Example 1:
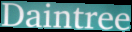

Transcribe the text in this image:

Daintree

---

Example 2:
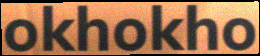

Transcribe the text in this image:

okhokho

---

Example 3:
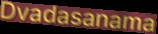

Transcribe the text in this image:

Dvadasanama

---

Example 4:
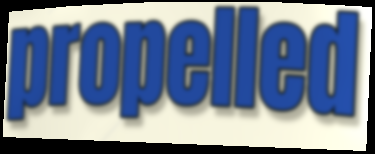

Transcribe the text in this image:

propelled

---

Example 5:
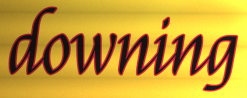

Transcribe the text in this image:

downing